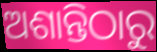
ଅଶାନ୍ତିଠାରୁ